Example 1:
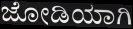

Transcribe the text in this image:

ಜೋಡಿಯಾಗಿ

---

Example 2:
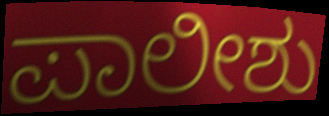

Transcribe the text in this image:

ಪಾಲೀಶು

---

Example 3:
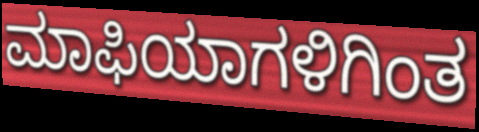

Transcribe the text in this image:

ಮಾಫಿಯಾಗಳಿಗಿಂತ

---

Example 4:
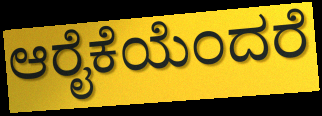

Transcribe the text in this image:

ಆರೈಕೆಯೆಂದರೆ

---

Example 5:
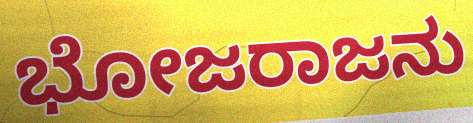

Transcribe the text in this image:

ಭೋಜರಾಜನು